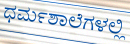
ಧರ್ಮಶಾಲೆಗಳಲ್ಲಿ